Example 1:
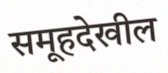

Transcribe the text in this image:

समूहदेखील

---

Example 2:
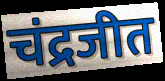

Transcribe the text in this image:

चंद्रजीत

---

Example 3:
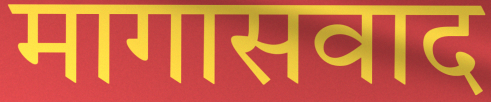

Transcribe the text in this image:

मागासवाद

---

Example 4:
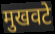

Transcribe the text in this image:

मुखवटे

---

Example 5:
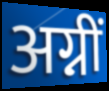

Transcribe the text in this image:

अग्नीं